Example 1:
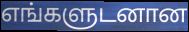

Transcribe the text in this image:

எங்களுடனான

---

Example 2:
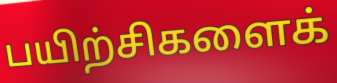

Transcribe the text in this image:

பயிற்சிகளைக்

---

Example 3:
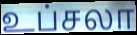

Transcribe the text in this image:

உப்சலா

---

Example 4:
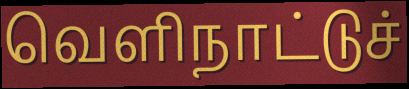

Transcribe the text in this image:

வெளிநாட்டுச்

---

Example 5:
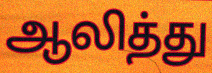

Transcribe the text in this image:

ஆலித்து